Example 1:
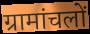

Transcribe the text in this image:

ग्रामांचलों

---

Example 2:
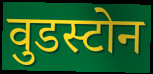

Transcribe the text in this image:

वुडस्टोन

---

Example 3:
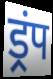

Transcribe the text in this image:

ड्रंप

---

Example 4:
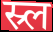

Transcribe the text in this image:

स्र्ल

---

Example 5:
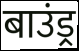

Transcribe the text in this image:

बाउंड्र